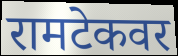
रामटेकवर